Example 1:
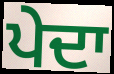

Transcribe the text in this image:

ਪੇਦਾ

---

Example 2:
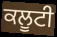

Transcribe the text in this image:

ਕਲੂਟੀ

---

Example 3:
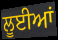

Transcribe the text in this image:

ਲੂਈਆਂ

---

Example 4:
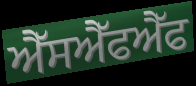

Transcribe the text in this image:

ਐੱਸਐੱਫਐੱਫ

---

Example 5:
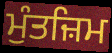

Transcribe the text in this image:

ਮੁੰਤਜ਼ਿਮ